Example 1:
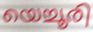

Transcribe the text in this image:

യെച്ചൂരി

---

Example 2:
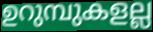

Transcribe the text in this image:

ഉറുമ്പുകളല്ല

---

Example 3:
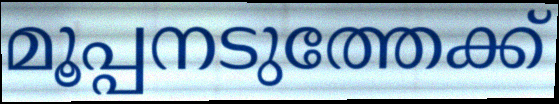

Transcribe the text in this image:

മൂപ്പനടുത്തേക്ക്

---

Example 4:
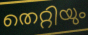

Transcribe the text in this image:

തെറ്റിയും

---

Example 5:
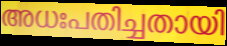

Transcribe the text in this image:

അധഃപതിച്ചതായി